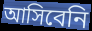
আসিবেনি